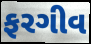
ફરગીવ